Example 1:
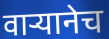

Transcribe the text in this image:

वाऱ्यानेच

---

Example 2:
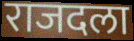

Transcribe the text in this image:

राजदला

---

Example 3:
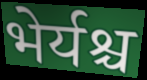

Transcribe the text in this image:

भेर्यश्च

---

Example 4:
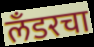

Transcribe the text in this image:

लँडरचा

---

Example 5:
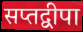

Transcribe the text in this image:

सप्तद्वीपा